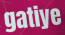
gatiye